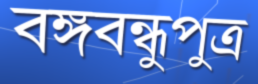
বঙ্গবন্ধুপুত্র